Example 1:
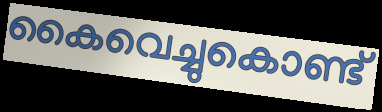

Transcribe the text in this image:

കൈവെച്ചുകൊണ്ട്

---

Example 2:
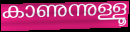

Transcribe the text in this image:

കാണുന്നുള്ളൂ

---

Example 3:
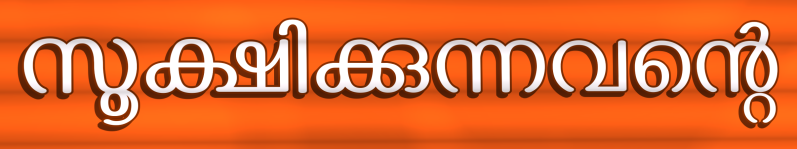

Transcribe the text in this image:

സൂക്ഷിക്കുന്നവന്റെ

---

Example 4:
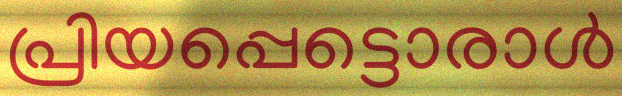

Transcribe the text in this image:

പ്രിയപ്പെട്ടൊരാൾ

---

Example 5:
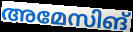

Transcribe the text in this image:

അമേസിങ്